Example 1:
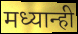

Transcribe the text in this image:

मध्यान्ही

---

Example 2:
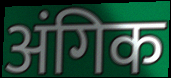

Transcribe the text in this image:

अंगिक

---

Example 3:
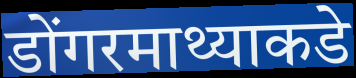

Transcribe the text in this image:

डोंगरमाथ्याकडे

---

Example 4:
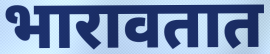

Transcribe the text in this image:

भारावतात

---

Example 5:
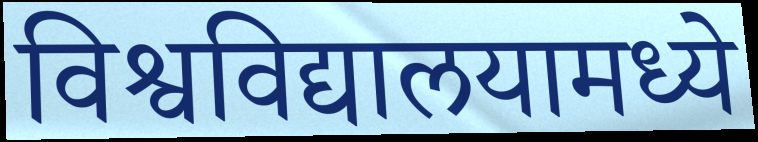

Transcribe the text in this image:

विश्वविद्यालयामध्ये